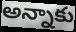
అన్నాకు